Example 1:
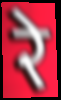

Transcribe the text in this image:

रे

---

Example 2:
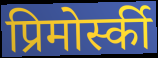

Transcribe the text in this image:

प्रिमोर्स्की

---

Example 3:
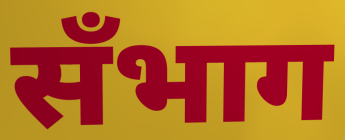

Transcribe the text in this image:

सँभाग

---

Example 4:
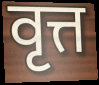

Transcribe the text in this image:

वृत्त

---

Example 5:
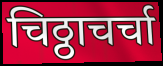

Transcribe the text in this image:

चिठ्ठाचर्चा